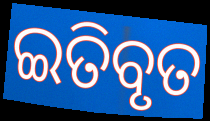
ଇତିବୃତ